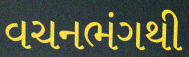
વચનભંગથી